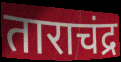
ताराचंद्र